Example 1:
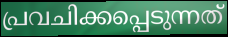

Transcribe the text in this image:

പ്രവചിക്കപ്പെടുന്നത്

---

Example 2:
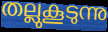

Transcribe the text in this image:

തല്ലുകൂടുന്നു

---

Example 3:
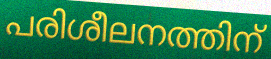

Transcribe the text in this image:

പരിശീലനത്തിന്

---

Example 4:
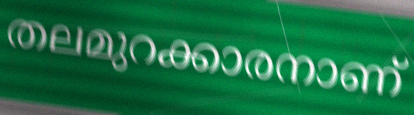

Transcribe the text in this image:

തലമുറക്കാരനാണ്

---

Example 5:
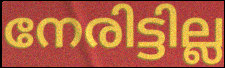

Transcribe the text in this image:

നേരിട്ടില്ല